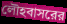
লৌহবাসরের